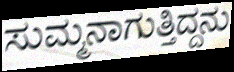
ಸುಮ್ಮನಾಗುತ್ತಿದ್ದನು